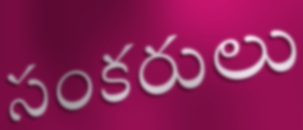
సంకరులు